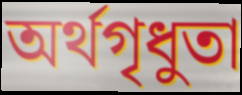
অর্থগৃধুতা